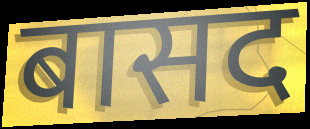
बासद